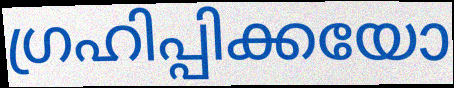
ഗ്രഹിപ്പിക്കയോ